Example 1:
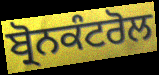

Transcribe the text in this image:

ਬ੍ਰੋਨਕੰਟਰੋਲ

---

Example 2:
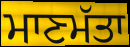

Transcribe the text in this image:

ਮਾਣਮੱਤਾ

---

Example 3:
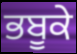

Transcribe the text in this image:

ਭਬੂਕੇ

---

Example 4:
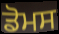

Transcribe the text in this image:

ਡੋਮਸ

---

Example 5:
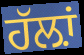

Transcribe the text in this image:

ਹੱਲ਼ਾਂ